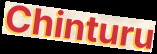
Chinturu